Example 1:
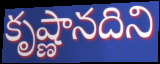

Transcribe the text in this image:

కృష్ణానదిని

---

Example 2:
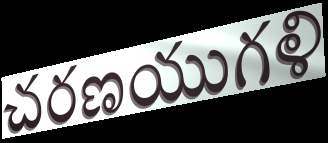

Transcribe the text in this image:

చరణయుగళి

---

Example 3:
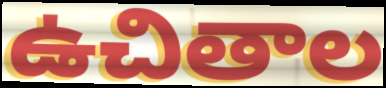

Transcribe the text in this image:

ఉచితాల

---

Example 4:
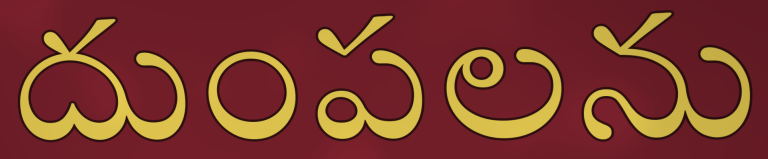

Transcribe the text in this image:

దుంపలను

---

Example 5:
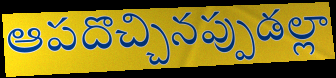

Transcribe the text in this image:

ఆపదొచ్చినప్పుడల్లా